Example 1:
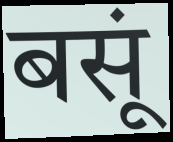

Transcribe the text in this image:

बसूं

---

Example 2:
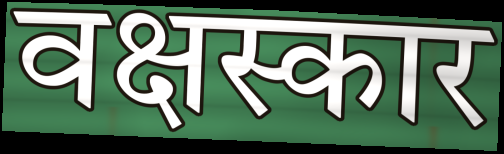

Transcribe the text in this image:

वक्षस्कार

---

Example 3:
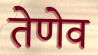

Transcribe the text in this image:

तेणेव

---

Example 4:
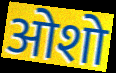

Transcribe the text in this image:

ओशो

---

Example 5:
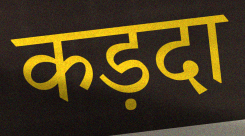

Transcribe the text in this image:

कड़दा